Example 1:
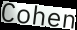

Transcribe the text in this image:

Cohen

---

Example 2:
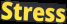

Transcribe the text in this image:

Stress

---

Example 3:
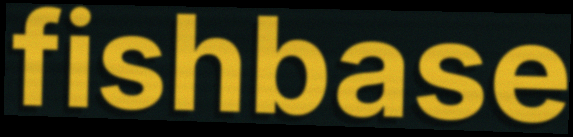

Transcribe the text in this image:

fishbase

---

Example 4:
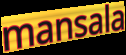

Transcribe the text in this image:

mansala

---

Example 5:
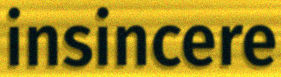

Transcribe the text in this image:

insincere